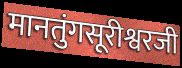
मानतुंगसूरीश्वरजी